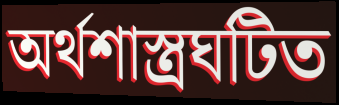
অর্থশাস্ত্রঘটিত